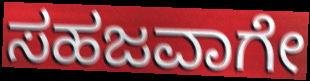
ಸಹಜವಾಗೇ